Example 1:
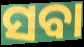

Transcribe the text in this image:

ସବା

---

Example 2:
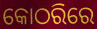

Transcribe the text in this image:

କୋଠରିରେ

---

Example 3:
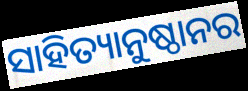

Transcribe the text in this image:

ସାହିତ୍ୟାନୁଷ୍ଠାନର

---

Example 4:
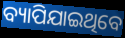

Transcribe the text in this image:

ବ୍ୟାପିଯାଇଥିବେ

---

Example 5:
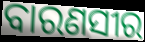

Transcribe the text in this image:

ବାରଣସୀର